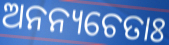
ଅନନ୍ୟଚେତାଃ